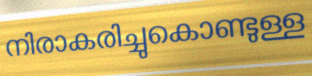
നിരാകരിച്ചുകൊണ്ടുള്ള